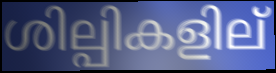
ശില്പികളില്